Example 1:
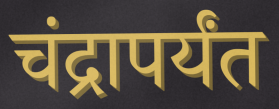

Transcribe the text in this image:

चंद्रापर्यंत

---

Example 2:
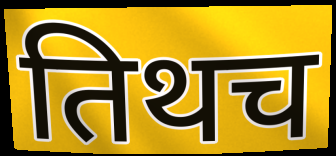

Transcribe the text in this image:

तिथच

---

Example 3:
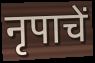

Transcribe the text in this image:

नृपाचें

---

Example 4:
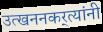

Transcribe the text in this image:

उत्खननकर्त्यांनी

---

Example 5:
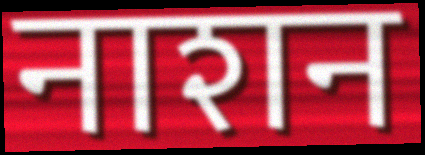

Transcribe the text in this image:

नाशन